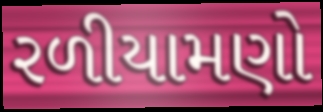
રળીયામણો